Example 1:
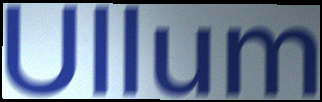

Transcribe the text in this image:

Ullum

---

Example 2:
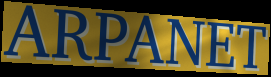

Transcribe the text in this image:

ARPANET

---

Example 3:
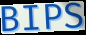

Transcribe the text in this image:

BIPS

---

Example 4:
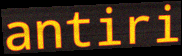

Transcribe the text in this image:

antiri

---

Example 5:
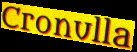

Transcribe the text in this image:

Cronulla